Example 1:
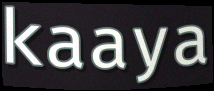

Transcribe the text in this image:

kaaya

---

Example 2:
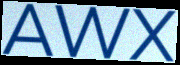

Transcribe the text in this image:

AWX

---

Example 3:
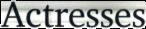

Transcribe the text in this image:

Actresses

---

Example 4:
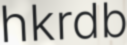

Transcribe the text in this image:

hkrdb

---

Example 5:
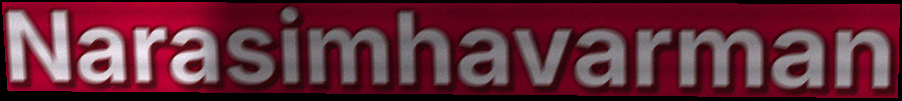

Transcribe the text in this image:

Narasimhavarman